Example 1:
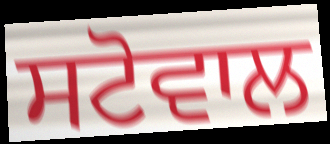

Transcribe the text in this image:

ਸਟੋਵਾਲ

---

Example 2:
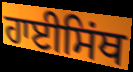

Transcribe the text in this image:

ਹਾਈਸਿਂਥ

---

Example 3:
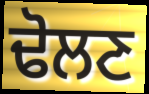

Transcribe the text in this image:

ਢੋਲਣ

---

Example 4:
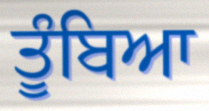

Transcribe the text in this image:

ਤੂੰਬਿਆ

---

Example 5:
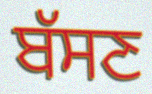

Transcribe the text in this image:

ਬੱਸਣ